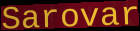
Sarovar